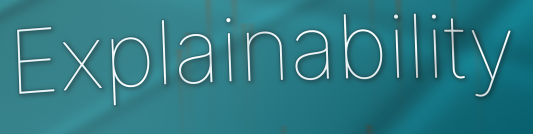
Explainability